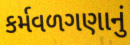
કર્મવળગણાનું